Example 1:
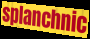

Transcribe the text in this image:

splanchnic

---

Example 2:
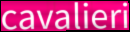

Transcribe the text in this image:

cavalieri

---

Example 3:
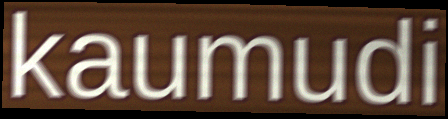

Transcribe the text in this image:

kaumudi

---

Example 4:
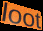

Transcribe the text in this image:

loot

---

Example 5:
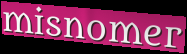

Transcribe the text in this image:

misnomer